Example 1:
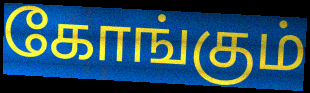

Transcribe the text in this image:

கோங்கும்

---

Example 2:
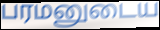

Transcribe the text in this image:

பரமனுடைய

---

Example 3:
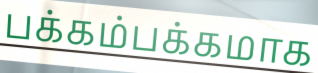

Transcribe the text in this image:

பக்கம்பக்கமாக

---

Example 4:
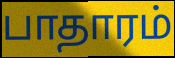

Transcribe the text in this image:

பாதாரம்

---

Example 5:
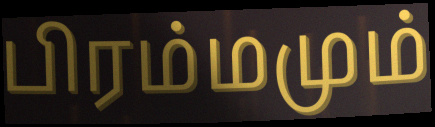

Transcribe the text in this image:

பிரம்மமும்